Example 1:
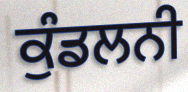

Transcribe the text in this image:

ਕੁੰਡਲਨੀ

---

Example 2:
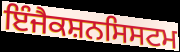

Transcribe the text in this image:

ਇੰਜੈਕਸ਼ਨਸਿਸਟਮ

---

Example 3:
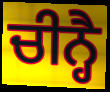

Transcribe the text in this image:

ਚੀਨ੍ਹ੍ਹੈ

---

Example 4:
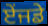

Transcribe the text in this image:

ਏਂਜਡੇ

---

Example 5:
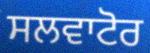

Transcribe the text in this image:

ਸਲਵਾਟੋਰ